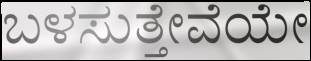
ಬಳಸುತ್ತೇವೆಯೇ